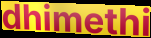
dhimethi